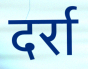
दर्रा